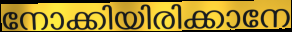
നോക്കിയിരിക്കാനേ